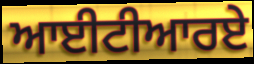
ਆਈਟੀਆਰਏ